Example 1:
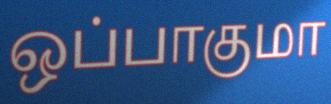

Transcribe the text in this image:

ஒப்பாகுமா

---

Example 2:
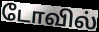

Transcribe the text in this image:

டோவில்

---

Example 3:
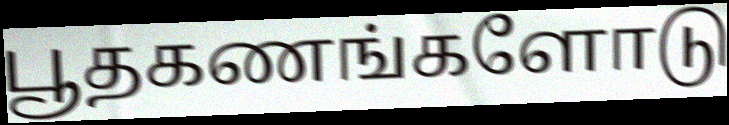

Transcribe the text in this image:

பூதகணங்களோடு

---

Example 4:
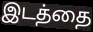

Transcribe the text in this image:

இடத்தை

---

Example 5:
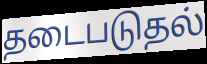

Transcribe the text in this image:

தடைபடுதல்